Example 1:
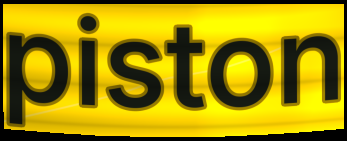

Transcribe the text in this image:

piston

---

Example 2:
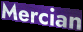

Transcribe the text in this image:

Mercian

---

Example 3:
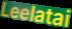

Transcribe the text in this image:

Leelatai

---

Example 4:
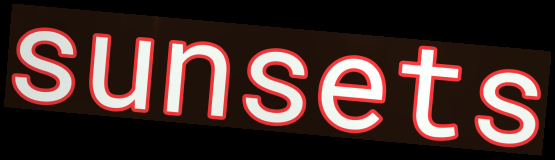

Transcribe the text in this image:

sunsets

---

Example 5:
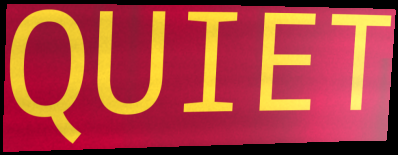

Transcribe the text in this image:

QUIET